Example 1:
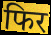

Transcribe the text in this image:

फिर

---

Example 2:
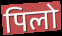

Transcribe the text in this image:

पिलो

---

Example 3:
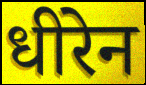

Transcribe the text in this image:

धीरेन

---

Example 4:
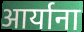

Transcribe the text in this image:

आर्याना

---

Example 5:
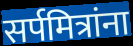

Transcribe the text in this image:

सर्पमित्रांना